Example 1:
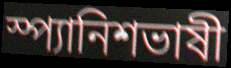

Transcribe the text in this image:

স্প্যানিশভাষী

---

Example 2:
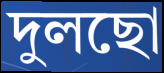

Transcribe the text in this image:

দুলছো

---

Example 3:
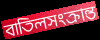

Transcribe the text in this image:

বাতিলসংক্রান্ত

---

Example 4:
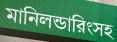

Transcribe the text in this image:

মানিলন্ডারিংসহ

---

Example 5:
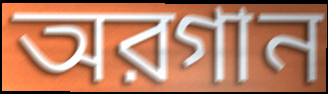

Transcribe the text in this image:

অরগান